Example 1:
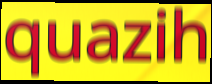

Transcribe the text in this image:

quazih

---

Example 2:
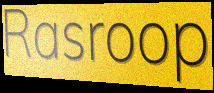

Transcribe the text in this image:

Rasroop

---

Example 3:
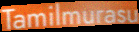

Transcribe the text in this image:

Tamilmurasu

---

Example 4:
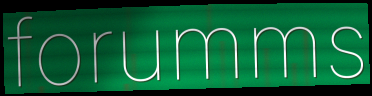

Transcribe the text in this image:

forumms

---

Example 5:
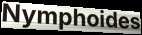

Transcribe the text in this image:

Nymphoides